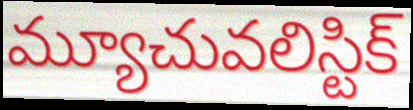
మ్యూచువలిస్టిక్